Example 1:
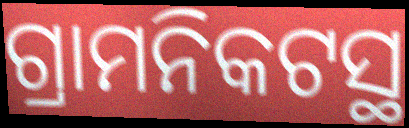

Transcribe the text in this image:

ଗ୍ରାମନିକଟସ୍ଥ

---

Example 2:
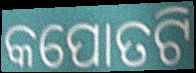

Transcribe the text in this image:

କପୋତଟି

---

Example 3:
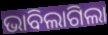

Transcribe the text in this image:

ଭାବିଲାଗିଲା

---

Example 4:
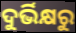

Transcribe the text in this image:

ଦୁର୍ଭିକ୍ଷରୁ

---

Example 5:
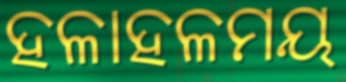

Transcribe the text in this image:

ହଳାହଳମୟ